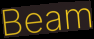
Beam